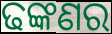
ଢଙ୍କଣର